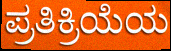
ಪ್ರತಿಕ್ರಿಯೆಯ